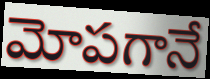
మోపగానే